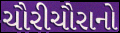
ચૌરીચૌરાનો